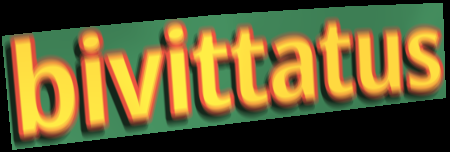
bivittatus